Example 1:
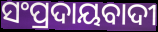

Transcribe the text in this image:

ସଂପ୍ରଦାୟବାଦୀ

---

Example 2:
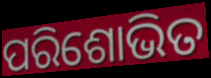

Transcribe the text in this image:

ପରିଶୋଭିତ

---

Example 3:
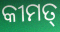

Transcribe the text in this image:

କୀମତ୍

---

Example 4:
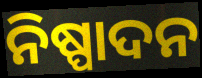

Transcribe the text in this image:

ନିଷ୍ପାଦନ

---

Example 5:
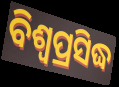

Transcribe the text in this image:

ବିଶ୍ଵପ୍ରସିଦ୍ଧ